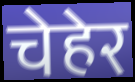
चेहेर